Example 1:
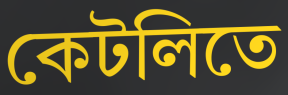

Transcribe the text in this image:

কেটলিতে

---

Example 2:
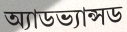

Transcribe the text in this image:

অ্যাডভ্যান্সড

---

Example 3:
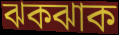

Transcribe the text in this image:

ঝকঝাক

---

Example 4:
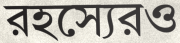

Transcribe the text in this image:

রহস্যেরও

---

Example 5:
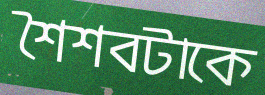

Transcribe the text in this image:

শৈশবটাকে